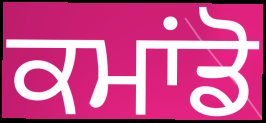
ਕਮਾਂਡੋ